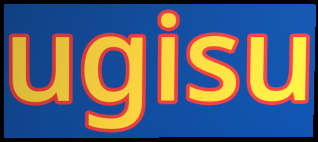
ugisu